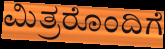
ಮಿತ್ರರೊಂದಿಗೆ